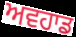
ਅਵਹਾਡ